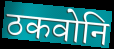
ठकवोनि